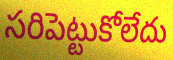
సరిపెట్టుకోలేదు